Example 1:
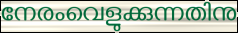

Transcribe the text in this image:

നേരംവെളുക്കുന്നതിനു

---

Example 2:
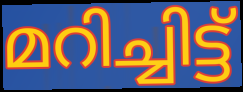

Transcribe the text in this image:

മറിച്ചിട്ട്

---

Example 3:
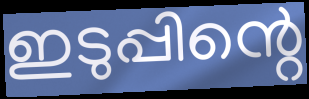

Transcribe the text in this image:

ഇടുപ്പിന്റെ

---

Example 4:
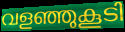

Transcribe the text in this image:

വളഞ്ഞുകൂടി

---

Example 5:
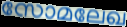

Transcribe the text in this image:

സോമലേഖ